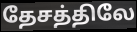
தேசத்திலே